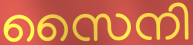
സൈനി